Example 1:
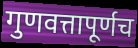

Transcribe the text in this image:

गुणवत्तापूर्णच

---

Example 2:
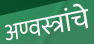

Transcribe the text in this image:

अण्वस्त्रांचे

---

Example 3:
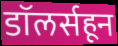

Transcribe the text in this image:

डॉलर्सहून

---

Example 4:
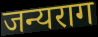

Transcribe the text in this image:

जन्यराग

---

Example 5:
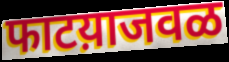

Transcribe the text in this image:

फाटय़ाजवळ